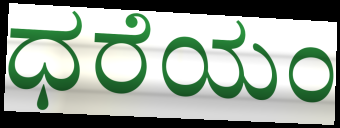
ಧರೆಯಂ